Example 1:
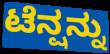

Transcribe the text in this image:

ಟೆನ್ಷನ್ನು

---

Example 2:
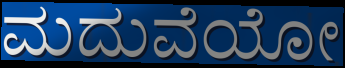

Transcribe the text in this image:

ಮದುವೆಯೋ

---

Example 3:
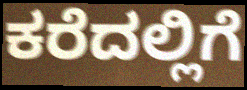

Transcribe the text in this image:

ಕರೆದಲ್ಲಿಗೆ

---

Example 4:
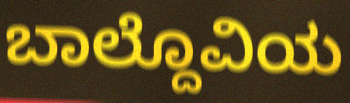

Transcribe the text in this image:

ಬಾಲ್ದೊವಿಯ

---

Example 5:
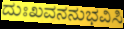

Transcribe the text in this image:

ದುಃಖವನನುಭವಿಸಿ